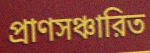
প্রাণসঞ্চারিত